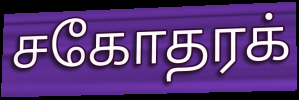
சகோதரக்